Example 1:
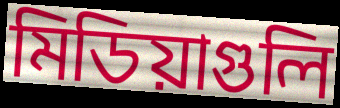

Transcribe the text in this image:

মিডিয়াগুলি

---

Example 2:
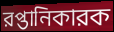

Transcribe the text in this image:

রপ্তানিকারক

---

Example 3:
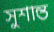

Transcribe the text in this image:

সুশান্ত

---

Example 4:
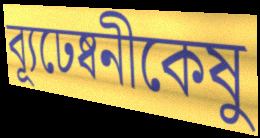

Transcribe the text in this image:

ব্যূঢেষ্বনীকেষু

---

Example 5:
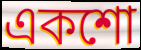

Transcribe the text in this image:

একশো